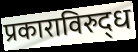
प्रकाराविरुद्ध